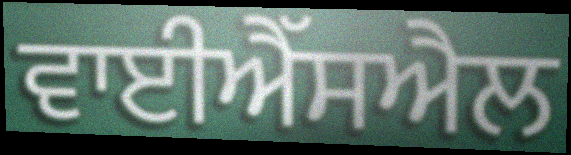
ਵਾਈਐੱਸਐਲ